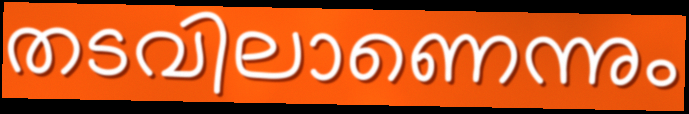
തടവിലാണെന്നും